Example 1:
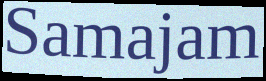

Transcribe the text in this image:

Samajam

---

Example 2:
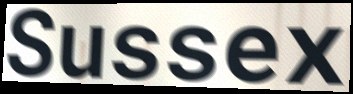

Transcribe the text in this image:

Sussex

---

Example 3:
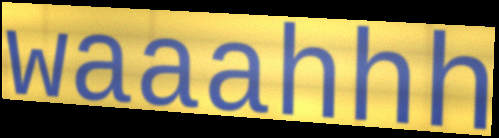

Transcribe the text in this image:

waaahhh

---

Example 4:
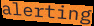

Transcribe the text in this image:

alerting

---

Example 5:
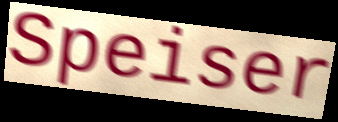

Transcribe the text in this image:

Speiser